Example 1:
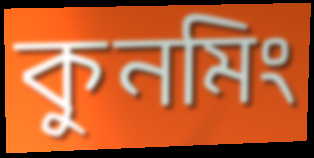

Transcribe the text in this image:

কুনমিং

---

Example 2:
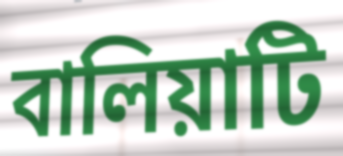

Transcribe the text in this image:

বালিয়াটি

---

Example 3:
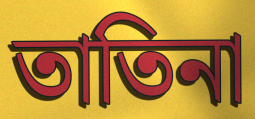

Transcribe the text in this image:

তাতিনা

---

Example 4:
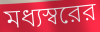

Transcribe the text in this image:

মধ্যস্বরের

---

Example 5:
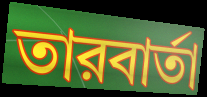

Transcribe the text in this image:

তারবার্তা